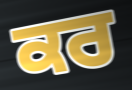
ਕਰ